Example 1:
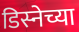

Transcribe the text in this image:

डिस्नेच्या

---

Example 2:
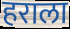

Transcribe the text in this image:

हराला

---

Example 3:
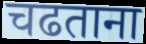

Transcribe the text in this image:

चढताना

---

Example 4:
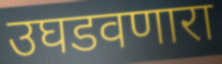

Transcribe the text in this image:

उघडवणारा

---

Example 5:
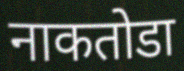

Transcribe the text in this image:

नाकतोडा